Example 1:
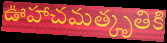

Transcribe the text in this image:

ఊహాచమత్కృతికి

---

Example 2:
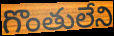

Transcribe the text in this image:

గొంతులేని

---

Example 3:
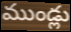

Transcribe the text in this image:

ముండ్లు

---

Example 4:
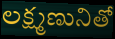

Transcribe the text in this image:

లక్ష్మణునితో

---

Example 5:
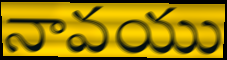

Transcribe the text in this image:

నావయు